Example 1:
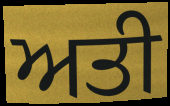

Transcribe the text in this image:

ਅਤੀ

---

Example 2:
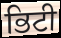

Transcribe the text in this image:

ਭਿਟੀ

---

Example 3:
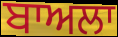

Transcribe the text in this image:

ਬਾਅਲਾ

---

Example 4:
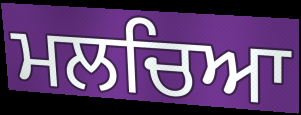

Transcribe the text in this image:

ਮਲਚਿਆ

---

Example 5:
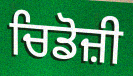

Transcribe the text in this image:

ਚਿਡੋਜ਼ੀ